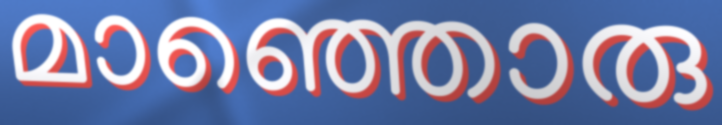
മാഞ്ഞൊരു